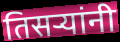
तिसऱ्यांनी